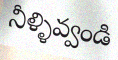
నీళ్ళివ్వండి